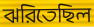
ঝরিতেছিল